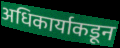
अधिकार्याकडून